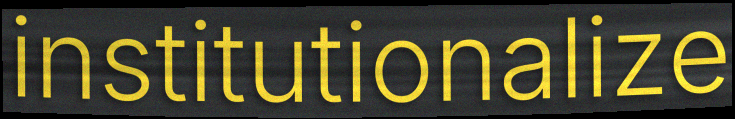
institutionalize